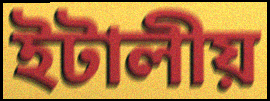
ইটালীয়